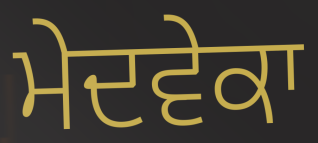
ਮੇਦਵੇਕਾ